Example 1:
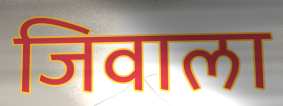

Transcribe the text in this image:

जिवाला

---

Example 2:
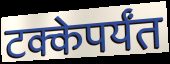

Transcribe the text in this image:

टक्केपर्यंत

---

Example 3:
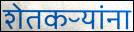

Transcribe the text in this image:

शेतकऱ्यांना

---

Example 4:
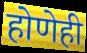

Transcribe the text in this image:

होणेही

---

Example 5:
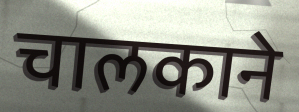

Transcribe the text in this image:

चालकाने